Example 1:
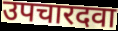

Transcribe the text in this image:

उपचारदवा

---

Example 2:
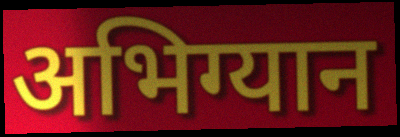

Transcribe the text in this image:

अभिग्यान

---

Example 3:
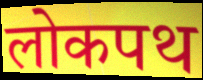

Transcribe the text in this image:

लोकपथ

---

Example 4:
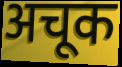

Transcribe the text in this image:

अचूक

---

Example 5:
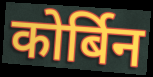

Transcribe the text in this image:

कोर्बिन